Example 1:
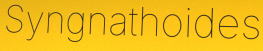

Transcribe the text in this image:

Syngnathoides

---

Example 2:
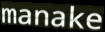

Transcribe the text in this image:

manake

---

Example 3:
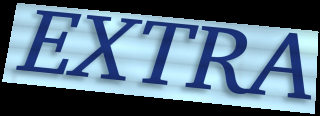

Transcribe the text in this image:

EXTRA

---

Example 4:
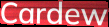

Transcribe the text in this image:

Cardew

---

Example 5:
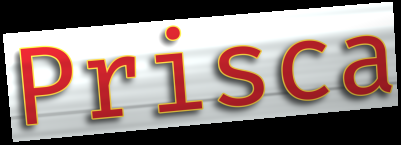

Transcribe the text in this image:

Prisca